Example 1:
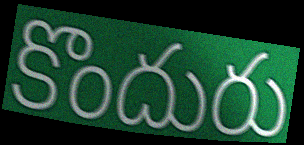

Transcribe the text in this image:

కొందురు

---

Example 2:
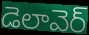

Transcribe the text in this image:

డెలావెర్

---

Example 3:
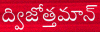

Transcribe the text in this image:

ద్విజోత్తమాన్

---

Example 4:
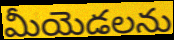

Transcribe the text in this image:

మీయెడలను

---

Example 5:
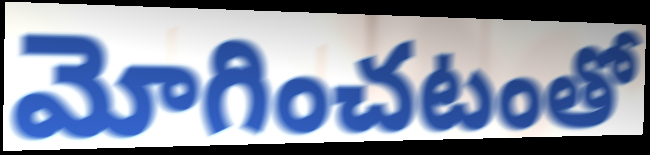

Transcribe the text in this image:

మోగించటంతో